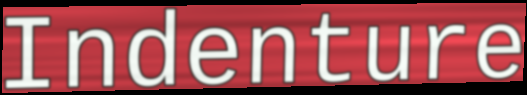
Indenture